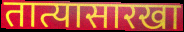
तात्यासारखा